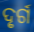
ଦୃର୍ଗ